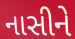
નાસીને